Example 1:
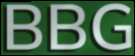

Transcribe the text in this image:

BBG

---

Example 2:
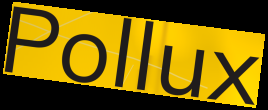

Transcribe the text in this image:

Pollux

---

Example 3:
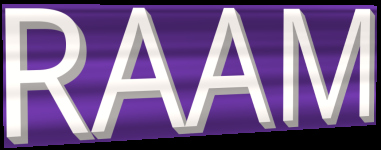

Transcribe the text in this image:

RAAM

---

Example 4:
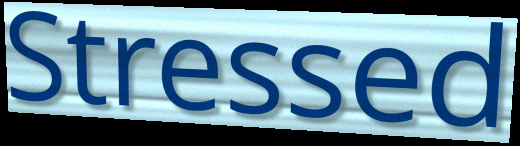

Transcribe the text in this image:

Stressed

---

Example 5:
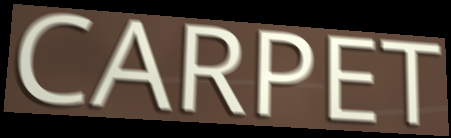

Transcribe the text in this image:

CARPET